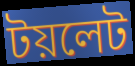
টয়লেট